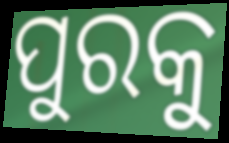
ପୁରକୁ